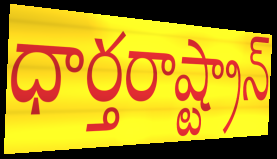
ధార్తరాష్ట్రాన్